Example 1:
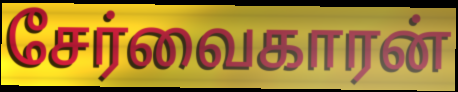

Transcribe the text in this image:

சேர்வைகாரன்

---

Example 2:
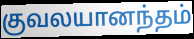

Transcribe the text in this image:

குவலயானந்தம்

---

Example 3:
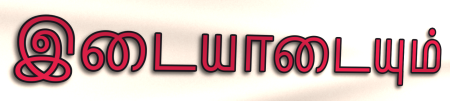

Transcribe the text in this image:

இடையாடையும்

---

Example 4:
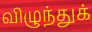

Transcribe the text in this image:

விழுந்துக்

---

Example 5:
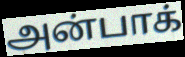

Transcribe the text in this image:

அன்பாக்